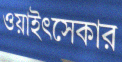
ওয়াইৎসেকার